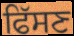
ਫਿੱਸਣ